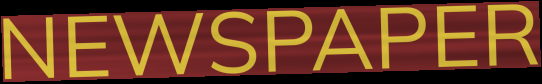
NEWSPAPER